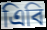
এিবি